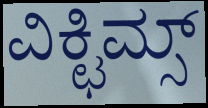
ವಿಕ್ಟಿಮ್ಸ್